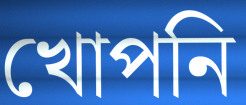
খোপনি